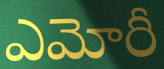
ఎమోరీ